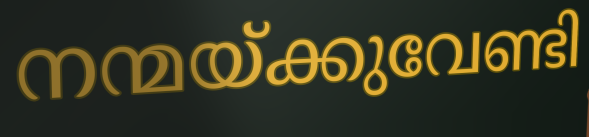
നന്മയ്ക്കുവേണ്ടി